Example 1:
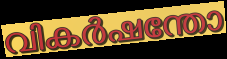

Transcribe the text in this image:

വികർഷന്തോ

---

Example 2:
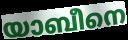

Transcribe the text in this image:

യാബീനെ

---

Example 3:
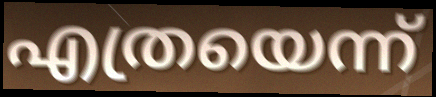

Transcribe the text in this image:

എത്രയെന്ന്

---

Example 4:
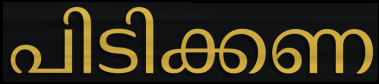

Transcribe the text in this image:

പിടിക്കണ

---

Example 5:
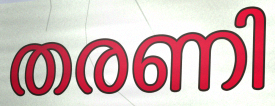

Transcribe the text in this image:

തരണി